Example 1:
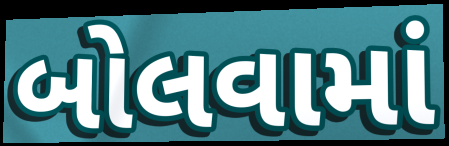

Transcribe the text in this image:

બોલવામાં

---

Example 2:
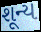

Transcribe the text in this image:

શૂન્ય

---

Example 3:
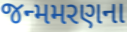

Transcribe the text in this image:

જન્મમરણના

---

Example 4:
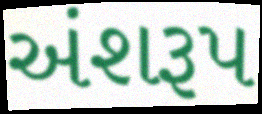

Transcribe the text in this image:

અંશરૂપ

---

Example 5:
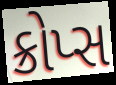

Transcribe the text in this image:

ક્રોપ્સ